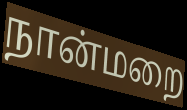
நான்மறை